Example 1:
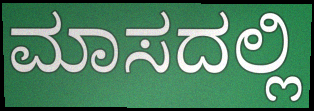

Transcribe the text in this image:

ಮಾಸದಲ್ಲಿ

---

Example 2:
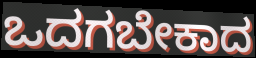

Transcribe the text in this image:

ಒದಗಬೇಕಾದ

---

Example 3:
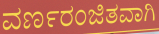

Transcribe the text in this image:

ವರ್ಣರಂಜಿತವಾಗಿ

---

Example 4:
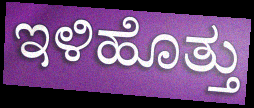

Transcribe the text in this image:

ಇಳಿಹೊತ್ತು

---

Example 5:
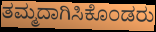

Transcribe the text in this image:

ತಮ್ಮದಾಗಿಸಿಕೊಂಡರು